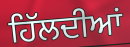
ਹਿੱਲਦੀਆਂ